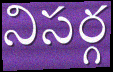
నిసర్గ